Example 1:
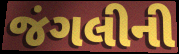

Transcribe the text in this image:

જંગલીની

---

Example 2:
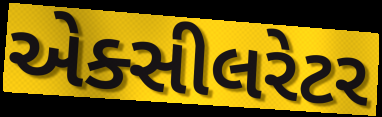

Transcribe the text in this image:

એક્સીલરેટર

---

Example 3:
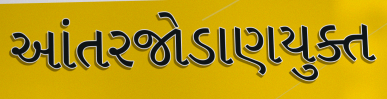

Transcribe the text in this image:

આંતરજોડાણયુક્ત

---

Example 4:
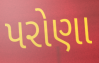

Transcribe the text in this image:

પરોણા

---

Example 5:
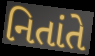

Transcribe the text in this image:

નિતાંતે